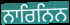
ਨਾਰਿਨਿਨ